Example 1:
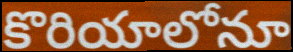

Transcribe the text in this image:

కొరియాలోనూ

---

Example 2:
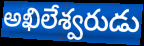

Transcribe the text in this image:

అఖిలేశ్వరుడు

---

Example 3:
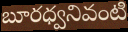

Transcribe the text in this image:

బూరధ్వనివంటి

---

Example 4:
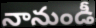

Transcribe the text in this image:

నానుండీ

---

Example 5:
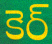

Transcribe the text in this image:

కెర్